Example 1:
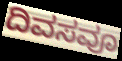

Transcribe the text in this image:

ದಿವಸವೂ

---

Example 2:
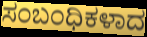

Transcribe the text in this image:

ಸಂಬಂಧಿಕಳಾದ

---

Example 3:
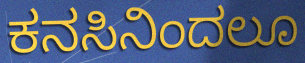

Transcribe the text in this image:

ಕನಸಿನಿಂದಲೂ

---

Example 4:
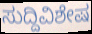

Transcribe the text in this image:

ಸುದ್ದಿವಿಶೇಷ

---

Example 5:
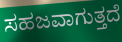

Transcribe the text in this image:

ಸಹಜವಾಗುತ್ತದೆ